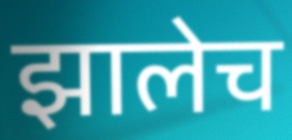
झालेच